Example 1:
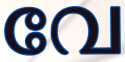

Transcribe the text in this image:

വേ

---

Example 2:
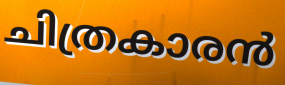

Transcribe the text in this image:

ചിത്രകാരൻ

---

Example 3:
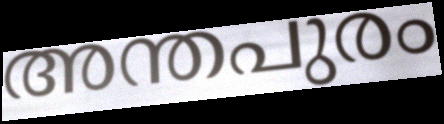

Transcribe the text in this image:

അന്തപുരം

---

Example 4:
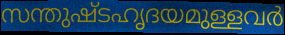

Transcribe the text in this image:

സന്തുഷ്ടഹൃദയമുള്ളവർ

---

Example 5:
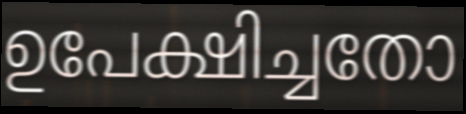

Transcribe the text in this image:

ഉപേക്ഷിച്ചതോ